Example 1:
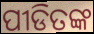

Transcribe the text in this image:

ପୀଡିତଙ୍କ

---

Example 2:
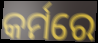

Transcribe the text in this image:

କର୍ମରେ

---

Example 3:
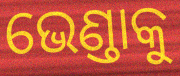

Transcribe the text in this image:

ଭେଣ୍ଡାକୁ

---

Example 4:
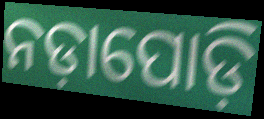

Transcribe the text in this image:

ନଡ଼ାପୋଡ଼ି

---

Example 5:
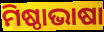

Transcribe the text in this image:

ମିଷ୍ଠାଭାଷା